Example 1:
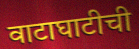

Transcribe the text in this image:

वाटाघाटीची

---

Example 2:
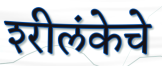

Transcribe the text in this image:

श्रीलंकेचे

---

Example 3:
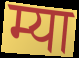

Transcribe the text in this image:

म्या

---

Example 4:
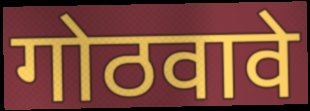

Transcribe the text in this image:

गोठवावे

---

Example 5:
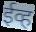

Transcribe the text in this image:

ईव्ह